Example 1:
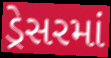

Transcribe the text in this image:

ડ્રેસરમાં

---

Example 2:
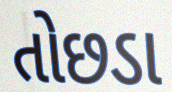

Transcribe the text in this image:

તોછડા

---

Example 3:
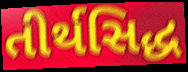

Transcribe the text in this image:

તીર્થસિદ્ધ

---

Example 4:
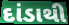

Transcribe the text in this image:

દાંડાથી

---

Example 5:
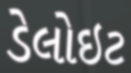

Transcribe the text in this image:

ડેલોઇટ